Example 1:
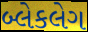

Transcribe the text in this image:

બ્લેકલેગ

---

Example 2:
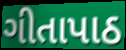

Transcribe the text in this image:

ગીતાપાઠ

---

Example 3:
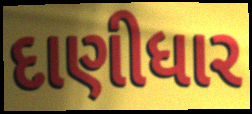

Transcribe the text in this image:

દાણીધાર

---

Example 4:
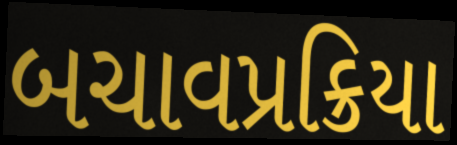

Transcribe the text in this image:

બચાવપ્રક્રિયા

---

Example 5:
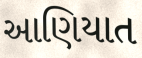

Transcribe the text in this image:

આણિયાત